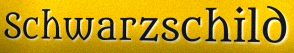
Schwarzschild